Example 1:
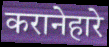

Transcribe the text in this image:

करानेहारे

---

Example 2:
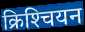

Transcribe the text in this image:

क्रिश्‍चियन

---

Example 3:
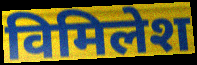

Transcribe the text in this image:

विमिलेश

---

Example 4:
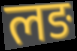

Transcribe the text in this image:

लङ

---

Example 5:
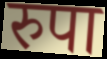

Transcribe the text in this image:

रुपा